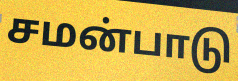
சமன்பாடு